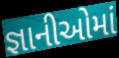
જ્ઞાનીઓમાં